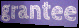
grantee